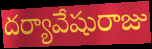
దర్యావేషురాజు